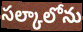
సల్కాలోను